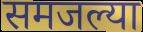
समजल्या